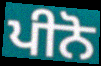
ਪੀਨੋ